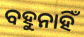
ବହୁନାହିଁ